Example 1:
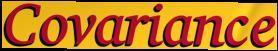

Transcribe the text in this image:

Covariance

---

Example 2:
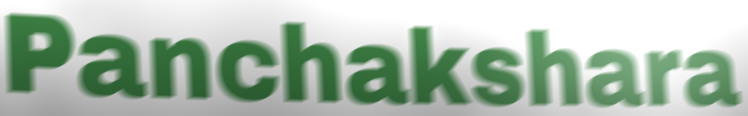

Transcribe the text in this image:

Panchakshara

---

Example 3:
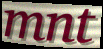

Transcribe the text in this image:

mnt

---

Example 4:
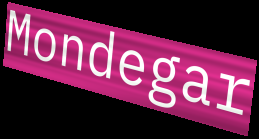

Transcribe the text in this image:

Mondegar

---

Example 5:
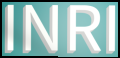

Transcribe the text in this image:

INRI